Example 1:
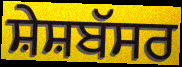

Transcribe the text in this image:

ਸ਼ੇਸ਼ਬੱਸਰ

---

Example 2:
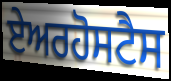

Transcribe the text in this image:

ਏਅਰਹੋਸਟੈਸ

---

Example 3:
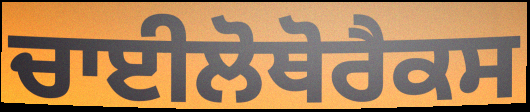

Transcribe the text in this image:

ਚਾਈਲੋਥੋਰੈਕਸ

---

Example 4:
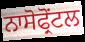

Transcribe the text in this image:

ਨਾਸੋਫ੍ਰੋਂਟਲ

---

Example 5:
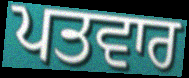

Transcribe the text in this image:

ਪਤਵਾਰ